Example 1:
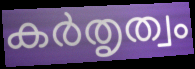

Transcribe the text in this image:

കർതൃത്വം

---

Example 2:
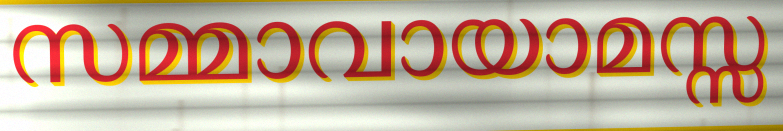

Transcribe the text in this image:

സമ്മാവായാമസ്സ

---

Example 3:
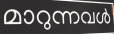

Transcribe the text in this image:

മാറുന്നവൾ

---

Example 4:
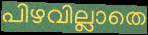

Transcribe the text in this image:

പിഴവില്ലാതെ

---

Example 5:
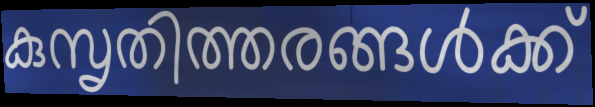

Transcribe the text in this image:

കുസൃതിത്തരങ്ങൾക്ക്